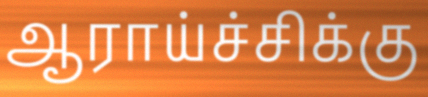
ஆராய்ச்சிக்கு